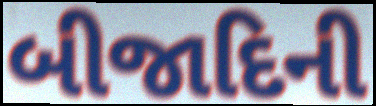
બીજાદિની